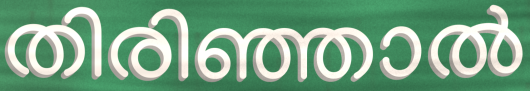
തിരിഞ്ഞാൽ